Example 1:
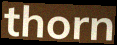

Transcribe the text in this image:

thorn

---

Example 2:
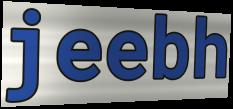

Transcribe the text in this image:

jeebh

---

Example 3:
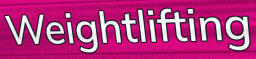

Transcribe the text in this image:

Weightlifting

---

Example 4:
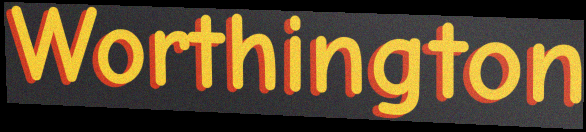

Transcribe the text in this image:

Worthington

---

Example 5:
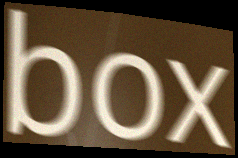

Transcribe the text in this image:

box